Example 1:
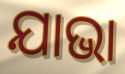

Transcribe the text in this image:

ଯାଭା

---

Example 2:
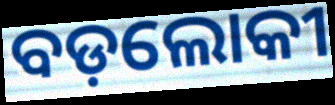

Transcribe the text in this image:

ବଡ଼ଲୋକୀ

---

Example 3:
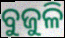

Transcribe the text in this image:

ବୁଜୁଳି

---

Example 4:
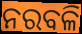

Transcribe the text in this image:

ନରବଳି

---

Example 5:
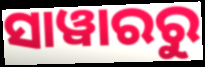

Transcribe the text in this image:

ସାୱାରରୁ